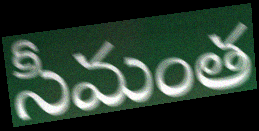
సీమంత